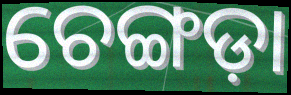
ଚେଙ୍ଗଡ଼ା